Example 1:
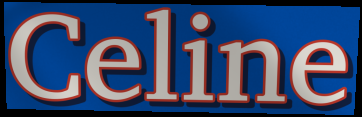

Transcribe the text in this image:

Celine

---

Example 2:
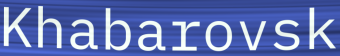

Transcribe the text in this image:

Khabarovsk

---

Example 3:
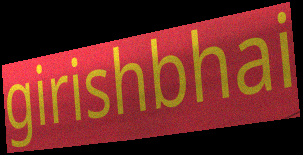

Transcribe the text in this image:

girishbhai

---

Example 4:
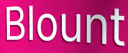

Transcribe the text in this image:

Blount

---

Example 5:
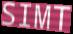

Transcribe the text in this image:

SIMT